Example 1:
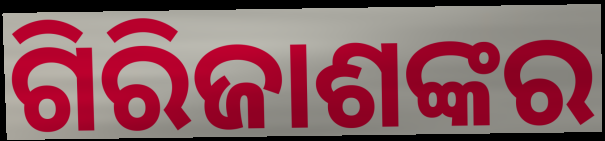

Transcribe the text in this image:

ଗିରିଜାଶଙ୍କର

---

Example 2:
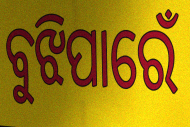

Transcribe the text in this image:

ବୁଝିପାରେଁ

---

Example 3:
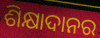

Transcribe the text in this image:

ଶିକ୍ଷାଦାନର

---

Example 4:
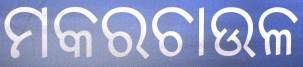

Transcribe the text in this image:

ମକରଚାଉଳ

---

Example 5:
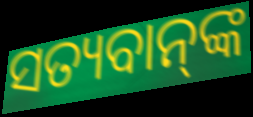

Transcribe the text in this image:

ସତ୍ୟବାନ୍‌ଙ୍କ